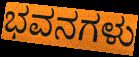
ಭವನಗಳು